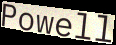
Powell